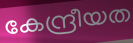
കേന്ദ്രീയത